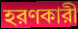
হরণকারী